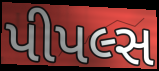
પીપલ્સ